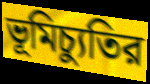
ভূমিচ্যুতির